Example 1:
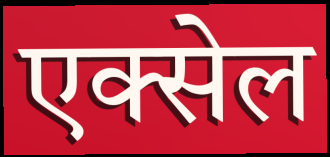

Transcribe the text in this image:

एक्‍सेल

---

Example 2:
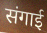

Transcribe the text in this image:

संगाई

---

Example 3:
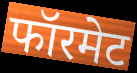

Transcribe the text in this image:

फॉरमेट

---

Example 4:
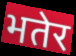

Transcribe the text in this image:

भतेर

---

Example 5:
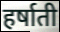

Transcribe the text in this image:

हर्षाती